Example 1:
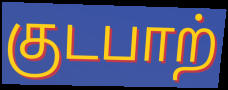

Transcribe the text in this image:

குடபாற்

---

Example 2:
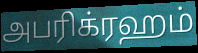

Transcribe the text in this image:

அபரிக்ரஹம்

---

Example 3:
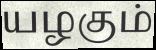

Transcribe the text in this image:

யழகும்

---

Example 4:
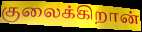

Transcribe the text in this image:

குலைக்கிறான்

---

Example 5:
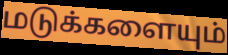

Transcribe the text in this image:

மடுக்களையும்